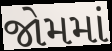
જોમમાં